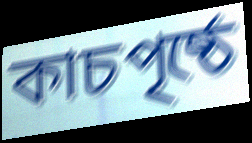
কাচপৃষ্ঠে